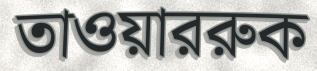
তাওয়াররুক